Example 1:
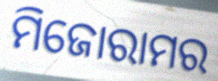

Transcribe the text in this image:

ମିଜୋରାମର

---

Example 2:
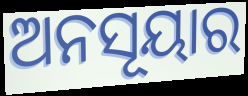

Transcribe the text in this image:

ଅନସୂୟାର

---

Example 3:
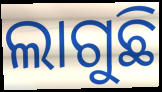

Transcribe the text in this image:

ଲାଗୁଛି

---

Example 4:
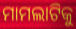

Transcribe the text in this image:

ମାମଲାଟିକୁ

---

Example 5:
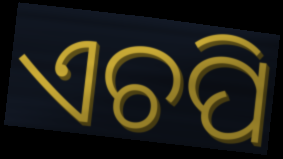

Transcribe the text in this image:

ଏଚପି